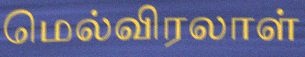
மெல்விரலாள்